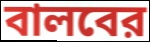
বালবের